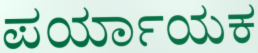
ಪರ್ಯಾಯಕ